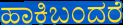
ಹಾಕಿಬಂದರೆ